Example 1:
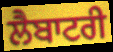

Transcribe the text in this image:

ਲੈਬਾਟਰੀ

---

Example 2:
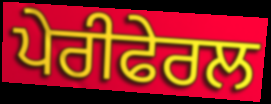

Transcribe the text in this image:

ਪੇਰੀਫੇਰਲ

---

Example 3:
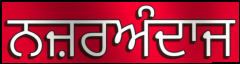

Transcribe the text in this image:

ਨਜ਼ਰਅੰਦਾਜ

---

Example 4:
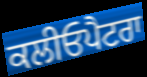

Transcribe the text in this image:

ਕਲੀਓਪੈਟਰਾ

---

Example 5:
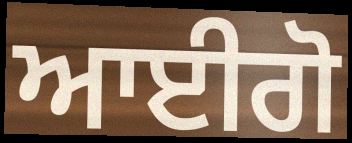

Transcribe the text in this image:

ਆਈਗੋ